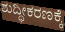
ಶುದ್ಧೀಕರಣಕ್ಕೆ